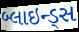
બ્લાઇન્ડ્સ